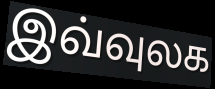
இவ்வுலக